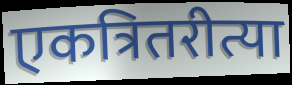
एकत्रितरीत्या